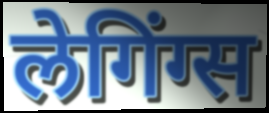
लेगिंग्स